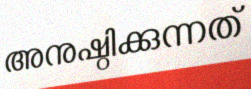
അനുഷ്ഠിക്കുന്നത്